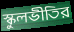
স্কুলভীতির